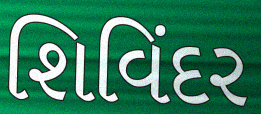
શિવિંદર